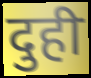
दुही